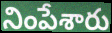
నింపేశారు